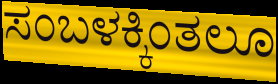
ಸಂಬಳಕ್ಕಿಂತಲೂ